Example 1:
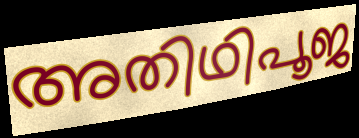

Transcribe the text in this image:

അതിഥിപൂജ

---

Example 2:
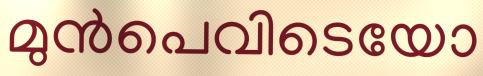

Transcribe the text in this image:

മുൻപെവിടെയോ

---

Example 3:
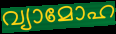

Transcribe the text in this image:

വ്യാമോഹ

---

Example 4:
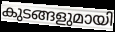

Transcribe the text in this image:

കുടങ്ങളുമായി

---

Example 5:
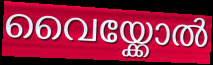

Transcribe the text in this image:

വൈയ്ക്കോൽ